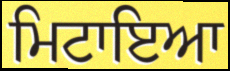
ਮਿਟਾਇਆ